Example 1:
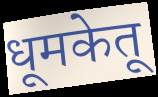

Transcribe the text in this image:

धूमकेतू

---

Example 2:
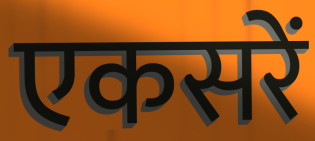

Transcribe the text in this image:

एकसरें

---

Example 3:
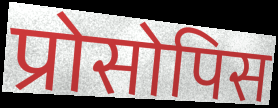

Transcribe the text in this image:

प्रोसोपिस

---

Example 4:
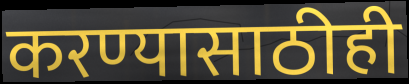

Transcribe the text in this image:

करण्यासाठीही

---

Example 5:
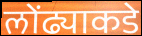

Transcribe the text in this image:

लोंढ्याकडे